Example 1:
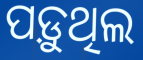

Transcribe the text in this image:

ପଡ଼ୁଥିଲ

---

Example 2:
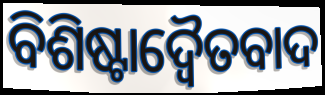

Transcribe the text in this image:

ବିଶିଷ୍ଟାଦ୍ଵୈତବାଦ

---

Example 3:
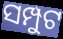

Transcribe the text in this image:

ସମ୍ପୁଟ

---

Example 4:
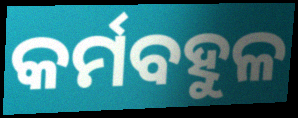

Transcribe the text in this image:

କର୍ମବହୁଳ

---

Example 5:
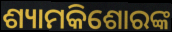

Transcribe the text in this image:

ଶ୍ୟାମକିଶୋରଙ୍କ